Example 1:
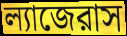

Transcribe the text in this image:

ল্যাজেরাস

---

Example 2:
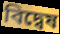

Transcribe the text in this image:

বিদ্বেষ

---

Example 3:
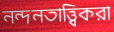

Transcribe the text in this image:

নন্দনতাত্ত্বিকরা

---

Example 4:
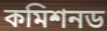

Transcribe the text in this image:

কমিশনড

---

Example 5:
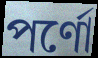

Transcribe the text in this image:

পর্ণো